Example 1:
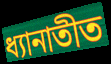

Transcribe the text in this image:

ধ্যানাতীত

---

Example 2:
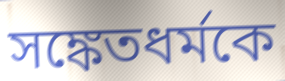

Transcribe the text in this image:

সঙ্কেতধর্মকে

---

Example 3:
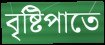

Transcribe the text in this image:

বৃষ্টিপাতে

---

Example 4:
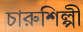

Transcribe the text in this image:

চারুশিল্পী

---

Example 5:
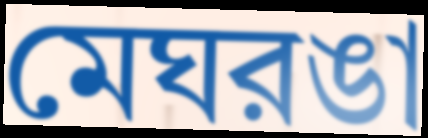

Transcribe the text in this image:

মেঘরঙা